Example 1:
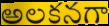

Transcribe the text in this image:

అలకనగా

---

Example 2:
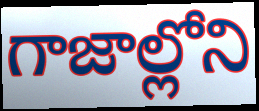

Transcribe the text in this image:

గాజాల్లోని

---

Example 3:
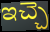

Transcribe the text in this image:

ఇచ్చె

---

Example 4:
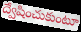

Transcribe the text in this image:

ద్వేషించుకుంటూ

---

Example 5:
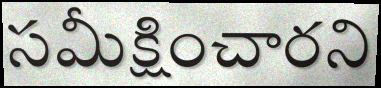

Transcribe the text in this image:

సమీక్షించారని